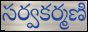
సర్వకర్మణి